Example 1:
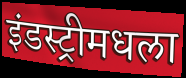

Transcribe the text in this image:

इंडस्ट्रीमधला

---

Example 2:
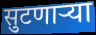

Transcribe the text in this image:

सुटणाऱ्या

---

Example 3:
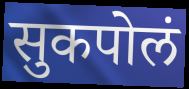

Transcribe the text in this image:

सुकपोलं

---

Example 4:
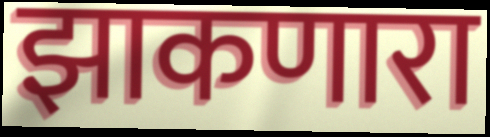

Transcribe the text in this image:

झाकणारा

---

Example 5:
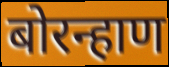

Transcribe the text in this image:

बोरन्हाण